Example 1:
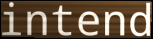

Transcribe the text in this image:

intend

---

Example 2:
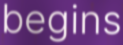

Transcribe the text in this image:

begins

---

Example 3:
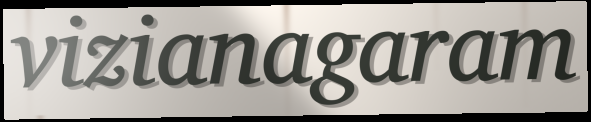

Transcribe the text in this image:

vizianagaram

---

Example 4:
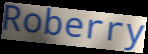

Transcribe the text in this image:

Roberry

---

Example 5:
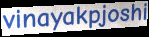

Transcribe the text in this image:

vinayakpjoshi